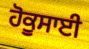
ਹੋਕੂਸਾਈ